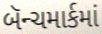
બૅન્ચમાર્કમાં